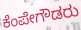
ಕೆಂಪೇಗೌಡರು